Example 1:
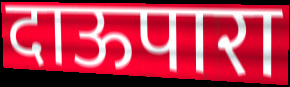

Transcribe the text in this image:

दाऊपारा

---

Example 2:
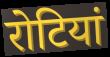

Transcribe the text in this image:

रोटियां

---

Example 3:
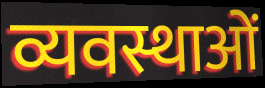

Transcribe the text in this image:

व्यवस्थाओें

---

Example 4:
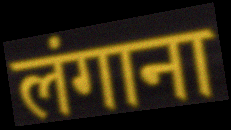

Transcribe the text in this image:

लंगाना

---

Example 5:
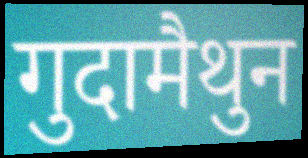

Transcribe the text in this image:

गुदामैथुन